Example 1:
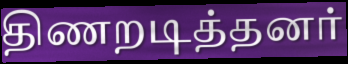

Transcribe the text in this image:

திணறடித்தனர்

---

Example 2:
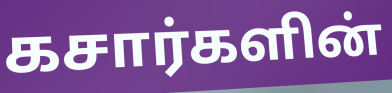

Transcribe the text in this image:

கசார்களின்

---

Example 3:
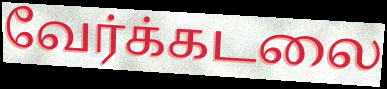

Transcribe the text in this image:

வேர்க்கடலை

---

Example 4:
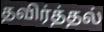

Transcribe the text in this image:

தவிர்த்தல்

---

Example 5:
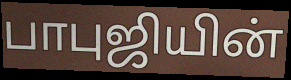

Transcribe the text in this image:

பாபுஜியின்